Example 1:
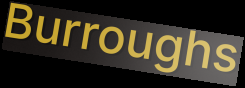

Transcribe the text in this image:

Burroughs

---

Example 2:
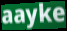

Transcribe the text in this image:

aayke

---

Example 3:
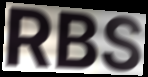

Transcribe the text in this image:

RBS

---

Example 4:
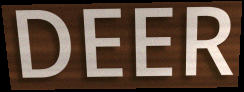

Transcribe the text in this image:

DEER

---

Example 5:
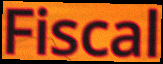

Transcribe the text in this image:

Fiscal